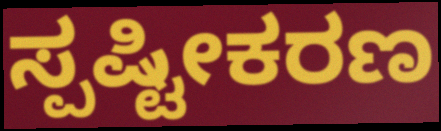
ಸ್ಪಷ್ಟೀಕರಣ